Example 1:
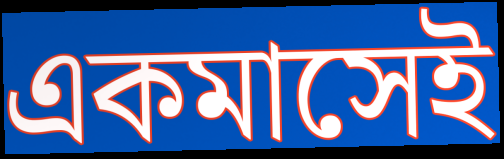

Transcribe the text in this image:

একমাসেই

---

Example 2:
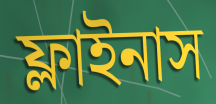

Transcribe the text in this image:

ফ্লাইনাস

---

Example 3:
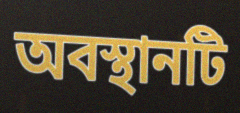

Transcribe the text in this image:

অবস্থানটি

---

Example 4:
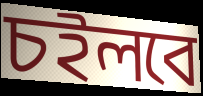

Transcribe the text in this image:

চইলবে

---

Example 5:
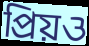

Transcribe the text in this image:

প্রিয়ও